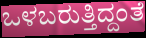
ಒಳಬರುತ್ತಿದ್ದಂತೆ